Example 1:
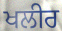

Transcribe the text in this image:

ਖਲੀਰ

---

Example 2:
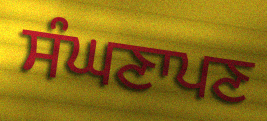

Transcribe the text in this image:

ਸੰਘਣਾਪਣ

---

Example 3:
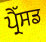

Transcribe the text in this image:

ਪ੍ਰੈੱਸਡ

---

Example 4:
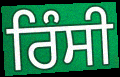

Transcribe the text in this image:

ਰਿੰਸੀ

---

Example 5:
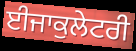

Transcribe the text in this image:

ਈਜਾਕੁਲੇਟਰੀ